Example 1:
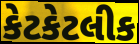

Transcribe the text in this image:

કેટકેટલીક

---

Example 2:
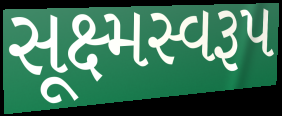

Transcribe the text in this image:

સૂક્ષ્મસ્વરૂપ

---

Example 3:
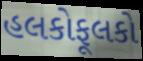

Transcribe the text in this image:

હલકોફૂલકો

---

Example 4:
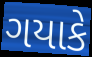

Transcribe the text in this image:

ગયાકે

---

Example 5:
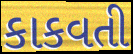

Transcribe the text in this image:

કાકવતી